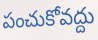
పంచుకోవద్దు